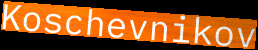
Koschevnikov